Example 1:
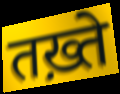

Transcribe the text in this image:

तख़्ते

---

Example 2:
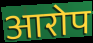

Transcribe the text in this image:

आरोप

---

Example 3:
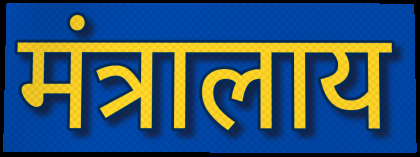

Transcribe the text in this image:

मंत्रालाय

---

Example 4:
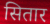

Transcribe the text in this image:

सितार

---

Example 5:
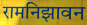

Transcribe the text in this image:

रामनिझावन